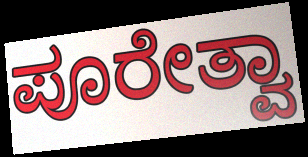
ಪೂರೇತ್ವಾ